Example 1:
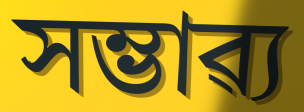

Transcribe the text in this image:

সম্ভাৱ্য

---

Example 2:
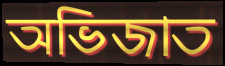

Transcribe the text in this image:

অভিজাত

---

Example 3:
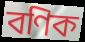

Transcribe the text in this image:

বণিক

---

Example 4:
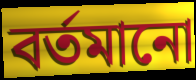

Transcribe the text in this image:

বৰ্তমানো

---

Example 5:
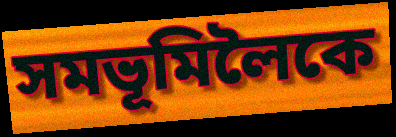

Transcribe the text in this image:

সমভূমিলৈকে